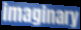
imaginary